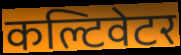
कल्टिवेटर